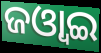
ଜଓ୍ବାଇ